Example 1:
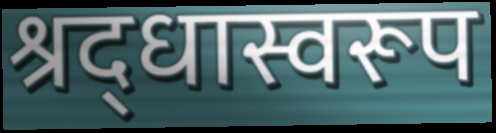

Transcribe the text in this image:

श्रद्धास्वरूप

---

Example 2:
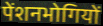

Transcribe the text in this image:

पेंशनभोगियों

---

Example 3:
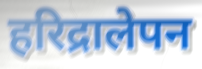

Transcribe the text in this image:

हरिद्रालेपन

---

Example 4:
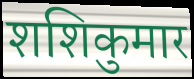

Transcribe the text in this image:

शशिकुमार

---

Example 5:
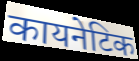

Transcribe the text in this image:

कायनेटिक